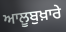
ਆਲੂਬੁਖ਼ਾਰੇ